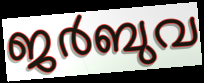
ജർബുവ